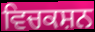
ਵਿਚਕਸ਼ਨ